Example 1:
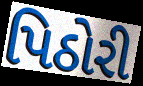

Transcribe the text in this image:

પિઠોરી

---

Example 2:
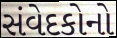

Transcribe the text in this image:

સંવેદકોનો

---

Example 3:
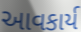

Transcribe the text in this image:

આવકાર્ય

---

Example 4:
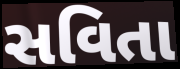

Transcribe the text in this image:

સવિતા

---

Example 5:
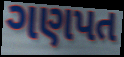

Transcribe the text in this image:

ગણપત